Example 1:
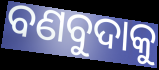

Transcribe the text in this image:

ବଣବୁଦାକୁ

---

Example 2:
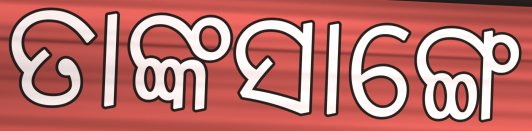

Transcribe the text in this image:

ତାଙ୍କସାଙ୍ଗେ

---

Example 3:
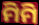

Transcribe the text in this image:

ମିମି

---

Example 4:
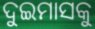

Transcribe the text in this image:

ଦୁଇମାସକୁ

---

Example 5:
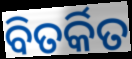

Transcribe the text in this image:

ବିତର୍କିତ